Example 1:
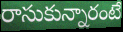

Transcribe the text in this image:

రాసుకున్నారంటే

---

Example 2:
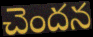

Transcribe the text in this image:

చెందన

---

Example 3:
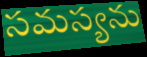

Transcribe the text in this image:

సమస్యను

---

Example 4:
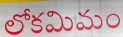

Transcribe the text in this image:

లోకమిమం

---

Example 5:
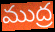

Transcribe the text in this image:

ముద్ర